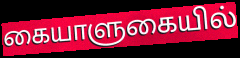
கையாளுகையில்